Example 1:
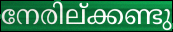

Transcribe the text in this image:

നേരില്ക്കണ്ടു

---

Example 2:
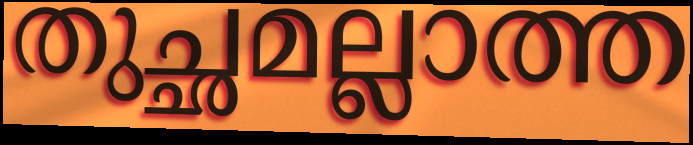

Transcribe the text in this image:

തുച്ഛമല്ലാത്ത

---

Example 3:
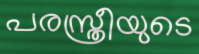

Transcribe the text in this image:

പരസ്ത്രീയുടെ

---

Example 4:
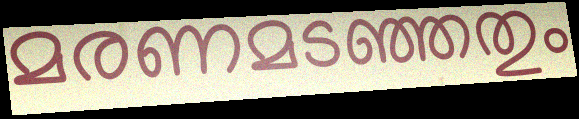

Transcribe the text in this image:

മരണമടഞ്ഞതും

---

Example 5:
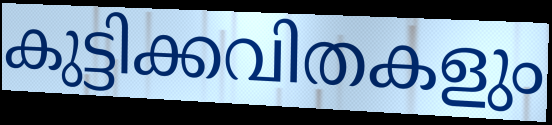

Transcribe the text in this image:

കുട്ടിക്കവിതകളും